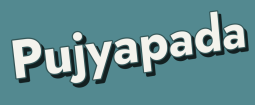
Pujyapada